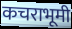
कचराभूमी